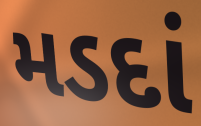
મડદાં